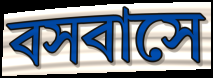
বসবাসে